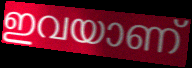
ഇവയാണ്